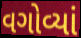
વગોવ્યાં